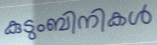
കുടുംബിനികൾ